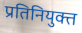
प्रतिनियुक्त